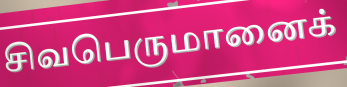
சிவபெருமானைக்